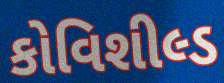
કોવિશીલ્ડ